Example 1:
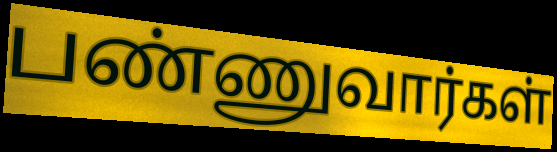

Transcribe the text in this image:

பண்ணுவார்கள்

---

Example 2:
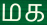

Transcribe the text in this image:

மக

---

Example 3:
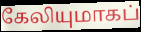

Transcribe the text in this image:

கேலியுமாகப்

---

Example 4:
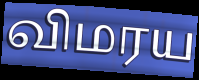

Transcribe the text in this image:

விமரய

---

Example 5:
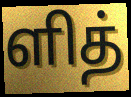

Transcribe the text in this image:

ளித்